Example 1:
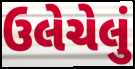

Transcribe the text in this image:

ઉલેચેલું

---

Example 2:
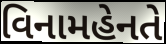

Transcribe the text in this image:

વિનામહેનતે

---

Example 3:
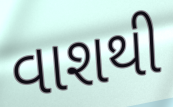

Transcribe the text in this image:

વાશથી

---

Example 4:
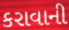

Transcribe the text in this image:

કરાવાની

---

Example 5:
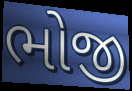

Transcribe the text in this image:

ભોજી